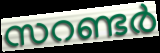
സറണ്ടർ